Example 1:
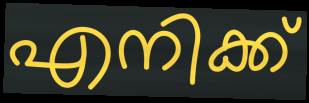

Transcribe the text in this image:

എനിക്ക്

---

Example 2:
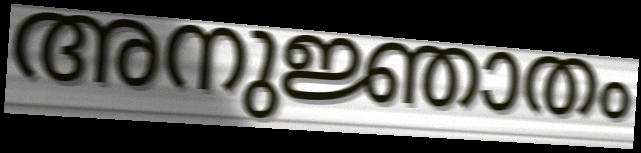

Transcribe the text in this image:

അനുജ്ഞാതം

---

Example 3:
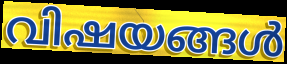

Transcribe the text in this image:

വിഷയങ്ങൾ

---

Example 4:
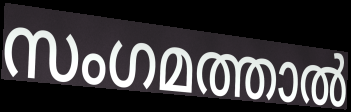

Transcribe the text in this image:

സംഗമത്താൽ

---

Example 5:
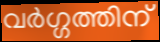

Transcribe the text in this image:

വർഗ്ഗത്തിന്